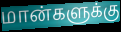
மான்களுக்கு